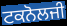
ਟਕਨੋਲਜੀ